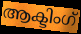
ആക്ടിംഗ്